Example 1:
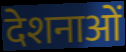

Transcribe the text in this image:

देशनाओं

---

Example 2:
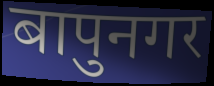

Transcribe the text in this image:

बापुनगर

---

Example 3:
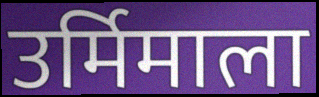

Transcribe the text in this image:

उर्मिमाला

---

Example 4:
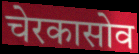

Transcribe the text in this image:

चेरकासोव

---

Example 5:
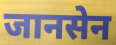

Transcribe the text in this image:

जानसेन